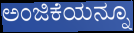
ಅಂಜಿಕೆಯನ್ನೂ